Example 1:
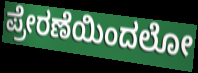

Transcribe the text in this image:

ಪ್ರೇರಣೆಯಿಂದಲೋ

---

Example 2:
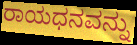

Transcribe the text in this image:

ರಾಯಧನವನ್ನು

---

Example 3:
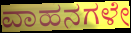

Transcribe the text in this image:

ವಾಹನಗಳೇ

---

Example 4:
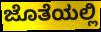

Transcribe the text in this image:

ಜೊತೆಯಲ್ಲಿ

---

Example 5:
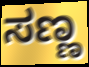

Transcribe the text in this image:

ಸಣ್ಣ